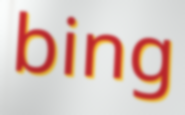
bing